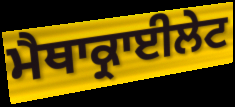
ਮੈਥਾਕ੍ਰਾਈਲੇਟ